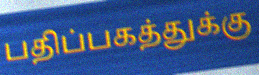
பதிப்பகத்துக்கு